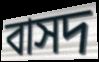
বাসদ